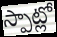
స్పాట్లో